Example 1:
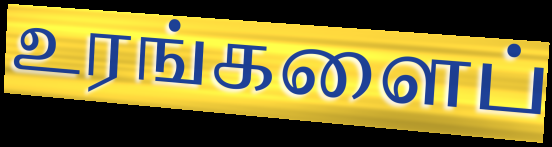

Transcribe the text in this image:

உரங்களைப்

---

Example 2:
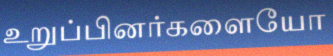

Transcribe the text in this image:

உறுப்பினர்களையோ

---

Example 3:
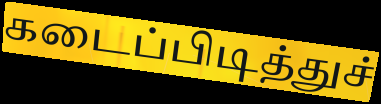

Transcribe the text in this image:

கடைப்பிடித்துச்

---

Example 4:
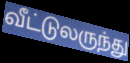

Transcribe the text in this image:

வீட்டுலருந்து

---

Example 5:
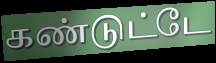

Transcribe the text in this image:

கண்டுட்டே